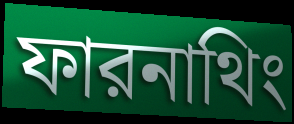
ফারনাথিং